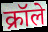
क्रॉले